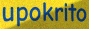
upokrito